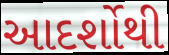
આદર્શોથી